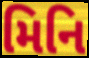
મિનિ